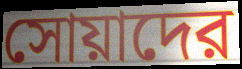
সোয়াদের